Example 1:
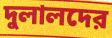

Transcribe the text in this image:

দুলালদের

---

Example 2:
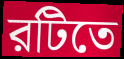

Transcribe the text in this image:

রটিতে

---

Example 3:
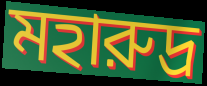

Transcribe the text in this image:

মহারুদ্র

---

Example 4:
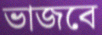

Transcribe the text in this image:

ভাজবে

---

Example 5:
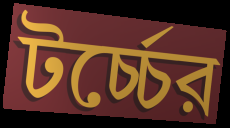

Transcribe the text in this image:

টর্চ্চের